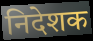
निदेशक